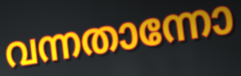
വന്നതാന്നോ